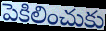
పెకిలించుకు